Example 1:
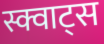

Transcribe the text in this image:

स्क्वाट्स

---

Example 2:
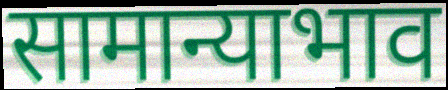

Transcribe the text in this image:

सामान्याभाव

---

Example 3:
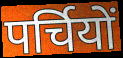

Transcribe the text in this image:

पर्चियों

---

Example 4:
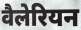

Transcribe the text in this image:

वैलेरियन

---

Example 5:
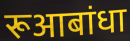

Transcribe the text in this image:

रूआबांधा